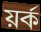
য়ৰ্ক